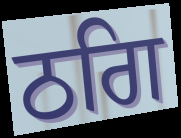
ਠਗਿ